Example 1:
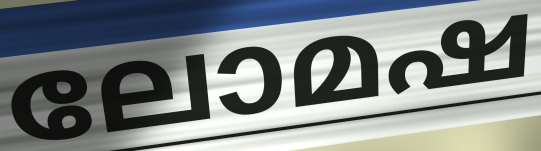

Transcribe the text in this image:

ലോമഷ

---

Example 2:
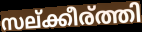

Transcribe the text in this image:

സല്ക്കീര്ത്തി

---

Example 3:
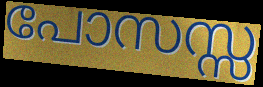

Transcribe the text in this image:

പോസസ്സ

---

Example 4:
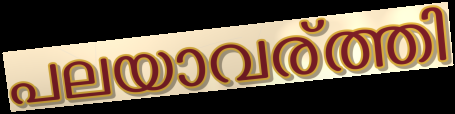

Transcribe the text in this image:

പലയാവര്ത്തി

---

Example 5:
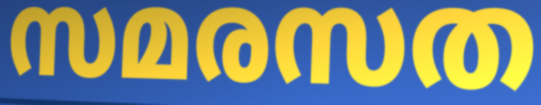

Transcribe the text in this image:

സമരസത